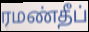
ரமண்தீப்